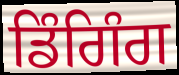
ਡਿੰਗਿੰਗ